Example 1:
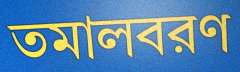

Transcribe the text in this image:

তমালবরণ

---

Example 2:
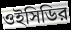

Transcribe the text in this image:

ওইসিডির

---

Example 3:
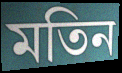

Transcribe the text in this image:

মতিন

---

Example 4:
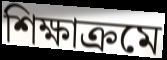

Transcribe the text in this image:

শিক্ষাক্রমে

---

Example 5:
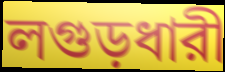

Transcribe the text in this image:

লগুড়ধারী